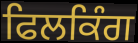
ਫਿਲਕਿੰਗ